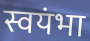
स्वयंभा